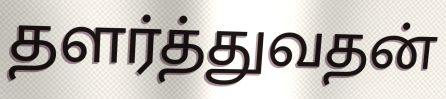
தளர்த்துவதன்